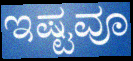
ಇಷ್ಟವೂ